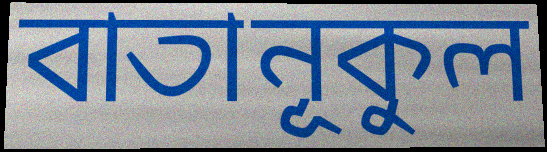
বাতানূকুল